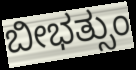
ಬೀಭತ್ಸುಂ